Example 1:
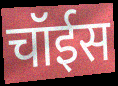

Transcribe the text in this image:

चॉईस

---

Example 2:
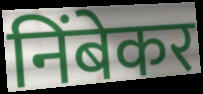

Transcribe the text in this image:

निंबेकर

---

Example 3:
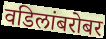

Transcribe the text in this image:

वडिलांबरोबर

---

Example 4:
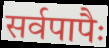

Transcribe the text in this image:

सर्वपापैः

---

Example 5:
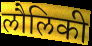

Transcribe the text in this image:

लौलिकी